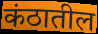
कंठातील